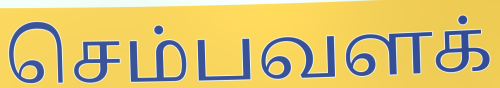
செம்பவளக்